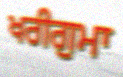
ਖਰੀਗੁਮਾ